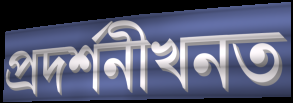
প্ৰদৰ্শনীখনত